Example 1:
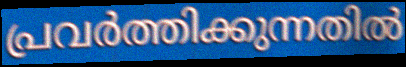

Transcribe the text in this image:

പ്രവർത്തിക്കുന്നതിൽ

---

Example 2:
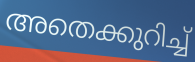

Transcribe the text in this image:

അതെക്കുറിച്ച്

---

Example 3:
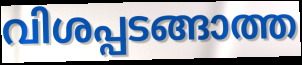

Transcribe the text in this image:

വിശപ്പടങ്ങാത്ത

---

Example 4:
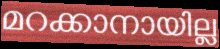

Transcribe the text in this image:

മറക്കാനായില്ല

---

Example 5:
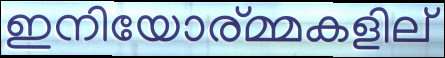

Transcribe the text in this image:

ഇനിയോര്മ്മകളില്